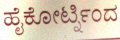
ಹೈಕೋರ್ಟ್ನಿಂದ